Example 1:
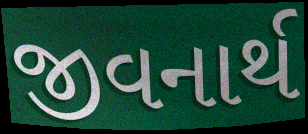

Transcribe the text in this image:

જીવનાર્થ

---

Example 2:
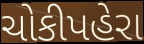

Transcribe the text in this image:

ચોકીપહેરા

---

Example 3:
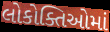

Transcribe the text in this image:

લોકોક્તિઓમાં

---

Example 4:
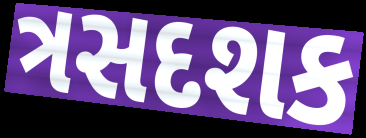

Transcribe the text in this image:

ત્રસદશક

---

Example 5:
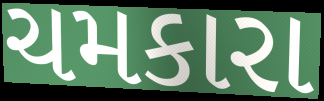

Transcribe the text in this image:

ચમકારા